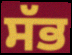
ਸੱਭ